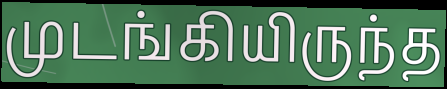
முடங்கியிருந்த